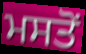
ਮਸਤੋਂ